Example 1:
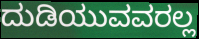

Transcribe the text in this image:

ದುಡಿಯುವವರಲ್ಲ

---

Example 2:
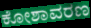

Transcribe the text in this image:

ಕೋಶಾವರಣ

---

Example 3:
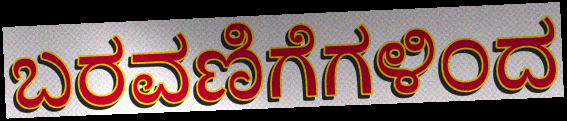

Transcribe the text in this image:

ಬರವಣಿಗೆಗಳಿಂದ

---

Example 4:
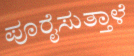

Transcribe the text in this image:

ಪೂರೈಸುತ್ತಾಳೆ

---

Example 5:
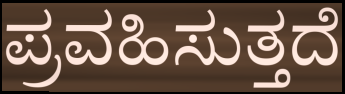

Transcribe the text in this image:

ಪ್ರವಹಿಸುತ್ತದೆ